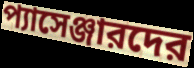
প্যাসেঞ্জারদের